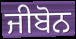
ਜੀਬੋਨ